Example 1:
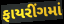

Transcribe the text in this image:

ફાયરીંગમાં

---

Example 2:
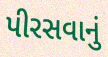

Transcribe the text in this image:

પીરસવાનું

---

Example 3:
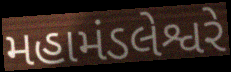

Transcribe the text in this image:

મહામંડલેશ્વરે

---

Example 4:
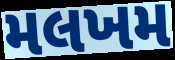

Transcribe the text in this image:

મલખમ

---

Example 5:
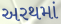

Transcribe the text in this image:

અરથમાં